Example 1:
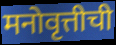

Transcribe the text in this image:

मनोवृत्तीची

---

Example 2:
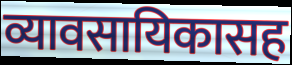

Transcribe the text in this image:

व्यावसायिकासह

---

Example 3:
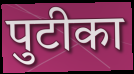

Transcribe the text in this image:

पुटीका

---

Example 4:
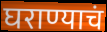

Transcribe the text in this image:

घराण्याचं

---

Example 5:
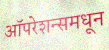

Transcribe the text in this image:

ऑपरेशन्समधून